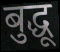
बुद्धू